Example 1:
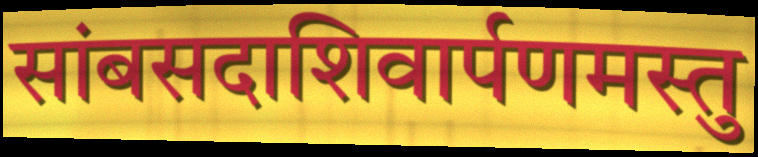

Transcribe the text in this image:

सांबसदाशिवार्पणमस्तु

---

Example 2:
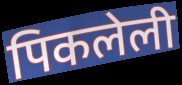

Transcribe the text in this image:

पिकलेली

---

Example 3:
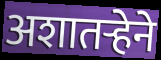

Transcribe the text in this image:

अशातऱ्हेने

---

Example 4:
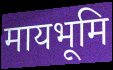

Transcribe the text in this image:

मायभूमि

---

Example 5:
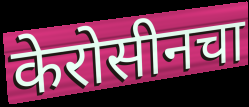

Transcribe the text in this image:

केरोसीनचा